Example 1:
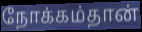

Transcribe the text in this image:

நோக்கம்தான்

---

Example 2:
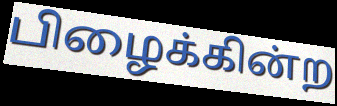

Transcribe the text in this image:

பிழைக்கின்ற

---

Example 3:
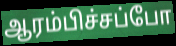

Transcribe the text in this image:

ஆரம்பிச்சப்போ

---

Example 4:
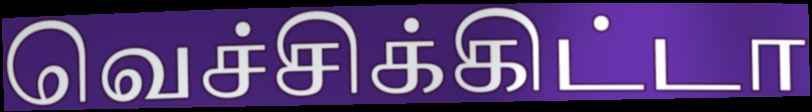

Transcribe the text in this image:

வெச்சிக்கிட்டா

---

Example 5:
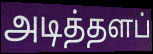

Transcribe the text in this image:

அடித்தளப்